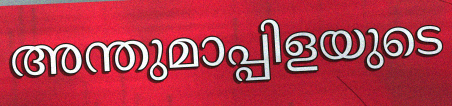
അന്തുമാപ്പിളയുടെ